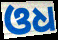
ଓଧ